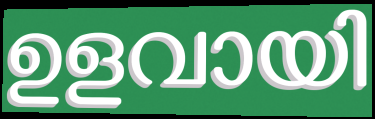
ഉളവായി